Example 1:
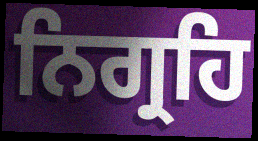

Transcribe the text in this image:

ਨਿਗ੍ਰਹਿ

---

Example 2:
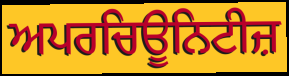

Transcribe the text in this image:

ਅਪਰਚਿਊਨਿਟੀਜ਼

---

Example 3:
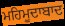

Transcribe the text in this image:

ਮਹਿਮੂਦਾਬਾਦ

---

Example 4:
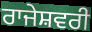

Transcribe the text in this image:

ਰਾਜੇਸ਼ਵਰੀ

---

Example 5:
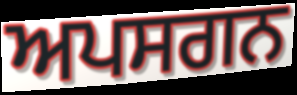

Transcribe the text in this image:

ਅਪਸਗਨ